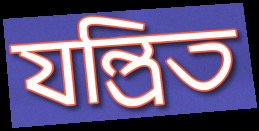
যন্ত্রিত